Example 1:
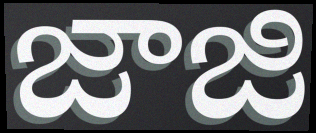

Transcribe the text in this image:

జాజి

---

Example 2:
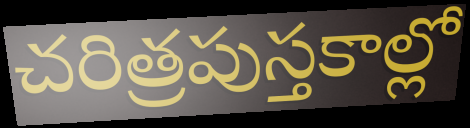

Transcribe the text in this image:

చరిత్రపుస్తకాల్లో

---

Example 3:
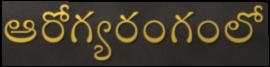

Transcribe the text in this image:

ఆరోగ్యరంగంలో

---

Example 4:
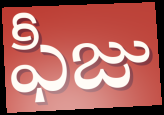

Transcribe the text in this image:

ఫీజు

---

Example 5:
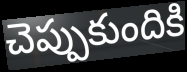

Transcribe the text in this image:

చెప్పుకుందికి